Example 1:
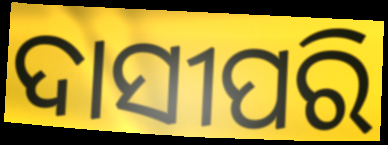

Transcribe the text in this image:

ଦାସୀପରି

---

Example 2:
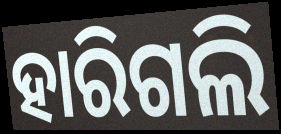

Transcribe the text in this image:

ହାରିଗଲି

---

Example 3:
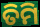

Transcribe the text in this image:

ତିମି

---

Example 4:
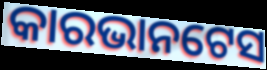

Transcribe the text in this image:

କାରଭାନଟେସ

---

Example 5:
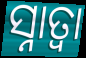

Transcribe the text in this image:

ସ୍ନାତ୍ବା